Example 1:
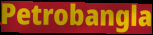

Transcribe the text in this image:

Petrobangla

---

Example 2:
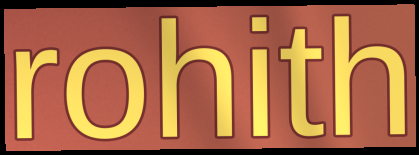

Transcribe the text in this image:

rohith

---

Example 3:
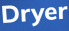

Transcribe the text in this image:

Dryer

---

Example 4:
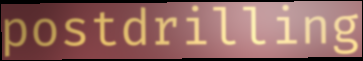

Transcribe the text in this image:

postdrilling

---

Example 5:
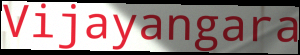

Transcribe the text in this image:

Vijayangara